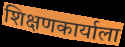
शिक्षणकार्याला